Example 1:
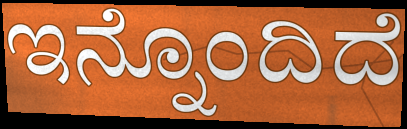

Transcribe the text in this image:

ಇನ್ನೊಂದಿದೆ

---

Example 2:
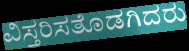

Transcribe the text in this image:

ವಿಸ್ತರಿಸತೊಡಗಿದರು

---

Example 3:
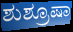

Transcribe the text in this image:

ಶುಶ್ರೂಷಾ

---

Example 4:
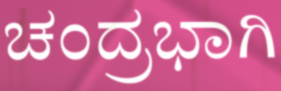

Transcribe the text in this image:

ಚಂದ್ರಭಾಗಿ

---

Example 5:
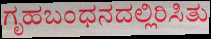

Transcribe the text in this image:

ಗೃಹಬಂಧನದಲ್ಲಿರಿಸಿತು